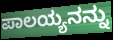
ಪಾಲಯ್ಯನನ್ನು